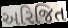
અરિજિત